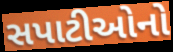
સપાટીઓનો